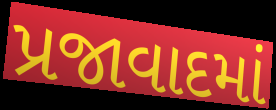
પ્રજાવાદમાં